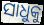
ସାଧୁକୁ